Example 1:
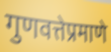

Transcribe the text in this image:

गुणवत्तेप्रमाणे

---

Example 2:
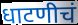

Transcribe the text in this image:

धाटणीचं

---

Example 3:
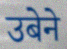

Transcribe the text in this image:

उबेने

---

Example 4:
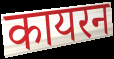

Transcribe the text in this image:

कायरन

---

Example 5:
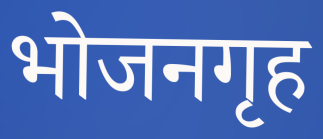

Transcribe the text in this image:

भोजनगृह